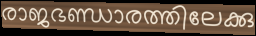
രാജഭണ്ഡാരത്തിലേക്കു